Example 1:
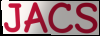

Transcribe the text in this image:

JACS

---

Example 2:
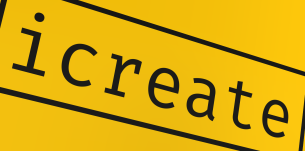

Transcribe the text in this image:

icreate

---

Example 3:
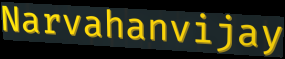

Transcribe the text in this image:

Narvahanvijay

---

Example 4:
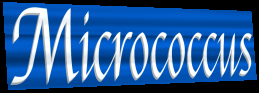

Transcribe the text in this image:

Micrococcus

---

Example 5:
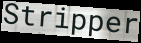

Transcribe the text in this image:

Stripper